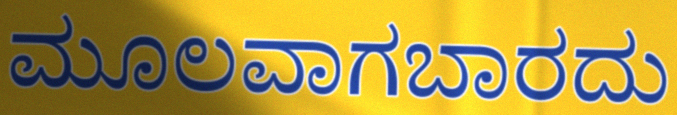
ಮೂಲವಾಗಬಾರದು